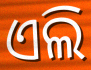
ଏଲି